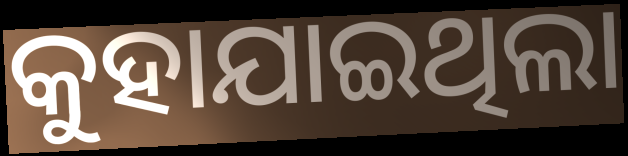
କୁହାଯାଇଥିଲା